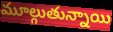
మూల్గుతున్నాయి